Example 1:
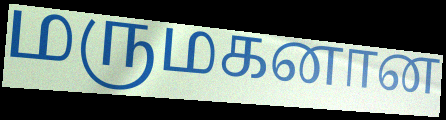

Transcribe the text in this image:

மருமகனான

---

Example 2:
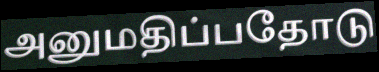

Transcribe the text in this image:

அனுமதிப்பதோடு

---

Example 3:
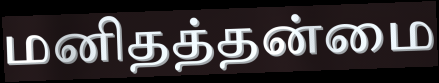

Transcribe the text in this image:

மனிதத்தன்மை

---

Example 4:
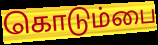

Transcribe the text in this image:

கொடும்பை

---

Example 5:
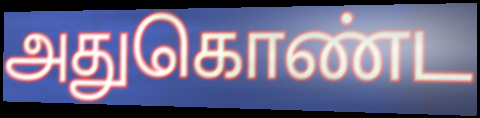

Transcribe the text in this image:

அதுகொண்ட